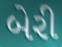
બેરી